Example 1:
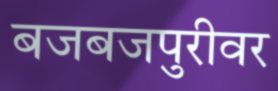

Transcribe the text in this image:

बजबजपुरीवर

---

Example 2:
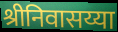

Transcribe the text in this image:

श्रीनिवासय्या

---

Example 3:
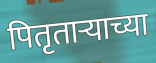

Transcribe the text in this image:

पितृताऱ्याच्या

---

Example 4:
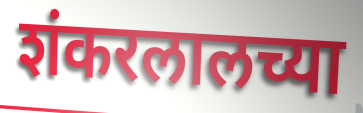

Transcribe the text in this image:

शंकरलालच्या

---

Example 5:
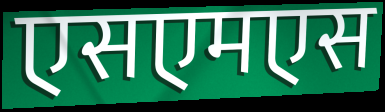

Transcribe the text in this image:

एसएमएस